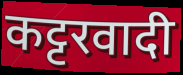
कट्टरवादी